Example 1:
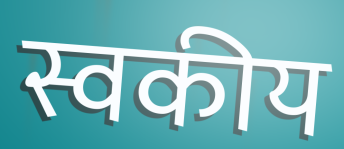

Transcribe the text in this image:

स्वकीय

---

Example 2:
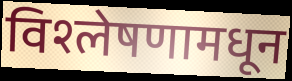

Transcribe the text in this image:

विश्लेषणामधून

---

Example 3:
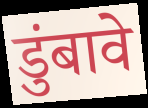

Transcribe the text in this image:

डुंबावे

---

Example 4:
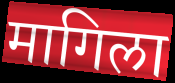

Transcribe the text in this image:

मागिला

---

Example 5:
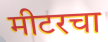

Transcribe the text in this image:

मीटरचा